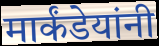
मार्कंडेयांनी